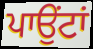
ਪਾਉਂਟਾਂ